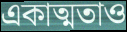
একাত্মতাও